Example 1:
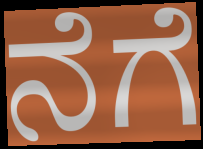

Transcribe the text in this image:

ನೆಗೆ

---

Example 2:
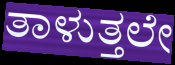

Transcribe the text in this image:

ತಾಳುತ್ತಲೇ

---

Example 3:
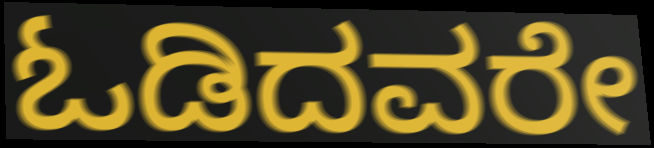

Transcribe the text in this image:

ಓಡಿದವರೇ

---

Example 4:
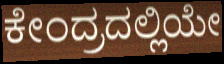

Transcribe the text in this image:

ಕೇಂದ್ರದಲ್ಲಿಯೇ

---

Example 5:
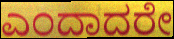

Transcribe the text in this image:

ಎಂದಾದರೇ